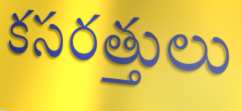
కసరత్తులు